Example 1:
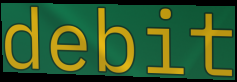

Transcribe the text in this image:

debit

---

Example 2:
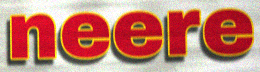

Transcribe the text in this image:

neere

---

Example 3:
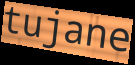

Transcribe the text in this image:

tujane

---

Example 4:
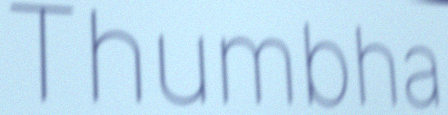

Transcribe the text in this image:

Thumbha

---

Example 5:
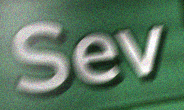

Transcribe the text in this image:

Sev